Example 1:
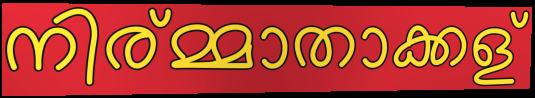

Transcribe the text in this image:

നിര്മ്മാതാക്കള്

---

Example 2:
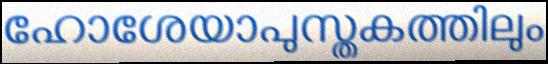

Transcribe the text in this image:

ഹോശേയാപുസ്തകത്തിലും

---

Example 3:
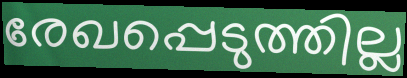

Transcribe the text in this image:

രേഖപ്പെടുത്തില്ല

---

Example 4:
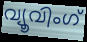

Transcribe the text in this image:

വ്യൂവിംഗ്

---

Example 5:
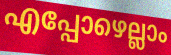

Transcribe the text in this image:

എപ്പോഴെല്ലാം